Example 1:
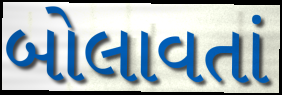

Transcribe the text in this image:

બોલાવતાં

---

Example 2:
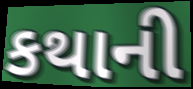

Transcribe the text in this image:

કથાની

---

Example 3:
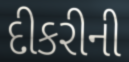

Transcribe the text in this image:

દીકરીની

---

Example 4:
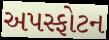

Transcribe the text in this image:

અપસ્ફોટન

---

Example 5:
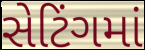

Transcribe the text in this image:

સેટિંગમાં